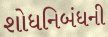
શોધનિબંધની